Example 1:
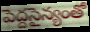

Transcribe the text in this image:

పెద్దసైన్యంతో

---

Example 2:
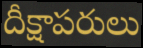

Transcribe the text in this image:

దీక్షాపరులు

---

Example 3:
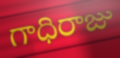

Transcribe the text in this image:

గాధిరాజు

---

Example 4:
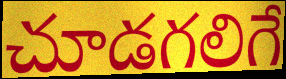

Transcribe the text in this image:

చూడగలిగే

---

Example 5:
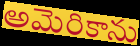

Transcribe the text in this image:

అమెరికాను